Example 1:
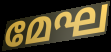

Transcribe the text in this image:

മേഘ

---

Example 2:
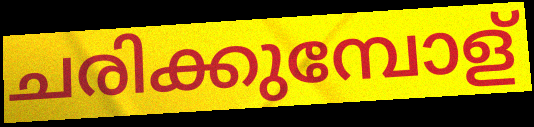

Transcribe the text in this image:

ചരിക്കുമ്പോള്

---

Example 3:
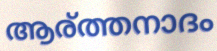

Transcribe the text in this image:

ആര്ത്തനാദം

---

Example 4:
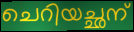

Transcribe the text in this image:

ചെറിയച്ഛന്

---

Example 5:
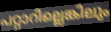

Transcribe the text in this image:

പറ്റാറില്ലെങ്കിലും